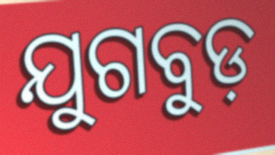
ଯୁଗବୁଡ଼